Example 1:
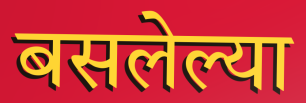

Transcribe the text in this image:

बसलेल्या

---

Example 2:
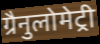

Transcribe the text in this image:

ग्रैनुलोमेट्री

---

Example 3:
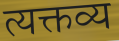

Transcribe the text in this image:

त्यक्तव्य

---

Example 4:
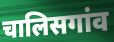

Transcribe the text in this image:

चालिसगांव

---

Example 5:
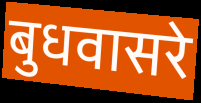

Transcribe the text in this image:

बुधवासरे